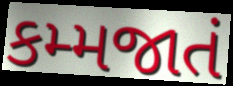
કમ્મજાતં